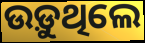
ଉଡ଼ୁଥିଲେ